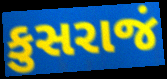
કુસરાજં